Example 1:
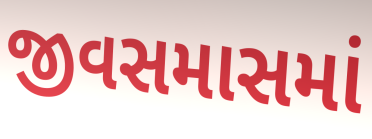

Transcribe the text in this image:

જીવસમાસમાં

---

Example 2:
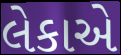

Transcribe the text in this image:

લેકાએ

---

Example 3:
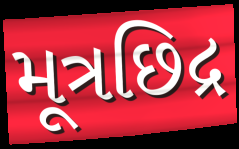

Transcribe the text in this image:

મૂત્રછિદ્ર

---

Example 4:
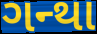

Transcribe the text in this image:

ગન્થા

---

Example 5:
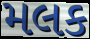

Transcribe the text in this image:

મલક